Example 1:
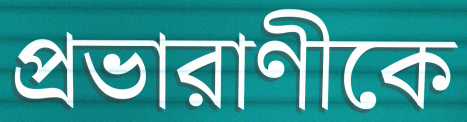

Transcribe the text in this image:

প্রভারাণীকে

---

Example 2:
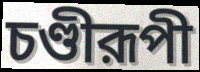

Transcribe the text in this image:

চণ্ডীরূপী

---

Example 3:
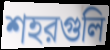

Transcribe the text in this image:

শহরগুলি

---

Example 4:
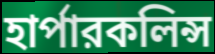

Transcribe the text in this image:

হার্পারকলিন্স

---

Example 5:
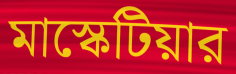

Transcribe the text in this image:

মাস্কেটিয়ার